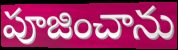
పూజించాను